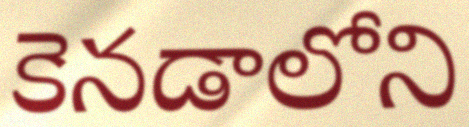
కెనడాలోని